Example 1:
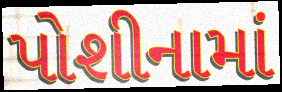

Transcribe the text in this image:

પોશીનામાં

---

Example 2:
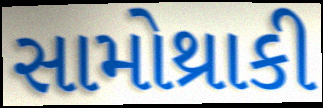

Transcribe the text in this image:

સામોથ્રાકી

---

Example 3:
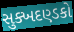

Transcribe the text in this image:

સુક્ખદણ્ડકો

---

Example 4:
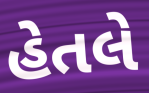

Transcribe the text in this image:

હેતલે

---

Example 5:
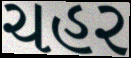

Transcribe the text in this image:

ચહર